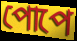
পোপে